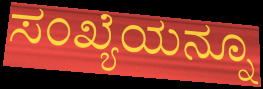
ಸಂಖ್ಯೆಯನ್ನೂ